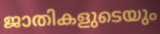
ജാതികളുടെയും